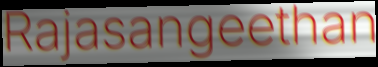
Rajasangeethan